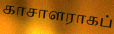
காசாளராகப்